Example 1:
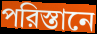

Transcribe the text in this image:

পরিস্তানে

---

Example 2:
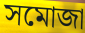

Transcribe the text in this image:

সমোজা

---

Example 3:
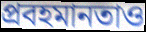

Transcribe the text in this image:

প্রবহমানতাও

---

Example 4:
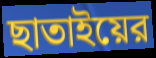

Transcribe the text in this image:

ছাতাইয়ের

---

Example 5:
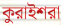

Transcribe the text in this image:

কুরাইশরা